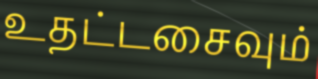
உதட்டசைவும்